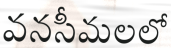
వనసీమలలో